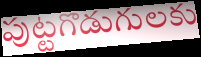
పుట్టగొడుగులకు